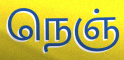
நெஞ்